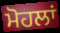
ਮੋਹਲਾਂ